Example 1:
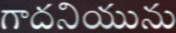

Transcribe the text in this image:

గాదనియును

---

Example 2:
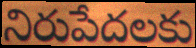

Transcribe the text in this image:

నిరుపేదలకు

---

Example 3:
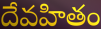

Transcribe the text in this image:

దేవహితం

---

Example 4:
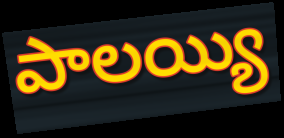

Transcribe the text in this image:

పాలయ్యి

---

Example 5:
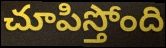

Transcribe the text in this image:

చూపిస్తోంది